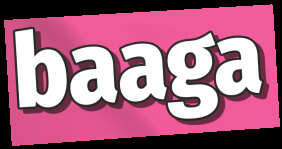
baaga